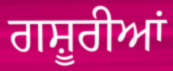
ਗਸ਼ੂਰੀਆਂ